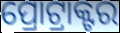
ପ୍ରୋଟ୍ରାକ୍ଟର